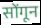
सोंगून